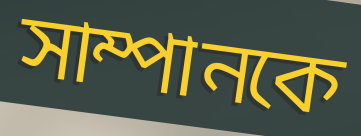
সাম্পানকে